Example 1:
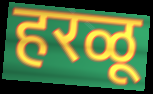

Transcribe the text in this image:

हरळू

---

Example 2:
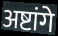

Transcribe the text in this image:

अष्टांगे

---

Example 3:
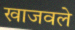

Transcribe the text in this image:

खाजवले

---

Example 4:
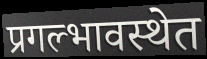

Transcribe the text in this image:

प्रगल्भावस्थेत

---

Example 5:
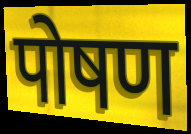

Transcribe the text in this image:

पोषण